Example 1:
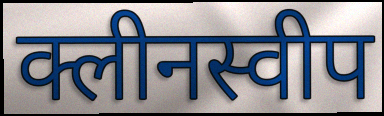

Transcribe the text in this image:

क्लीनस्वीप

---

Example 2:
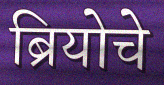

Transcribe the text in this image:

ब्रियोचे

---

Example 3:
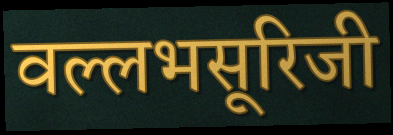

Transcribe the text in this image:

वल्लभसूरिजी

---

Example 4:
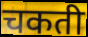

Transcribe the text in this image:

चकती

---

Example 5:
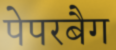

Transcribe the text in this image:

पेपरबैग